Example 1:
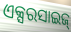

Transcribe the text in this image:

ଏକ୍ସରସାଇଜ୍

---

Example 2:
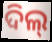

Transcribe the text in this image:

ଦିଲ୍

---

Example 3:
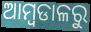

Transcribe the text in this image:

ଆମ୍ବଡାଳରୁ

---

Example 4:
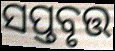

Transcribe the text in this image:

ସପ୍ତବୃତ୍ତ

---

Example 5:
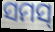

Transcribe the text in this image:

ସମସ୍